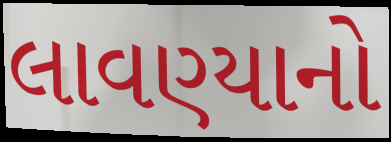
લાવણ્યાનો